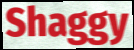
Shaggy